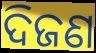
ଦିଜଣ